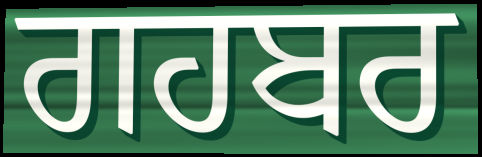
ਗਹਬਰ